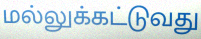
மல்லுக்கட்டுவது